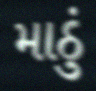
માઠું